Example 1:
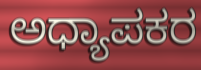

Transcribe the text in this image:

ಅಧ್ಯಾಪಕರ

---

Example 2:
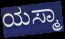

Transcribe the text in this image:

ಯಸ್ಮಾ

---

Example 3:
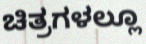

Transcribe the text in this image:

ಚಿತ್ರಗಳಲ್ಲೂ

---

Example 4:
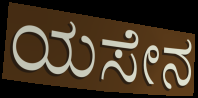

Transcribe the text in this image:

ಯಸೇನ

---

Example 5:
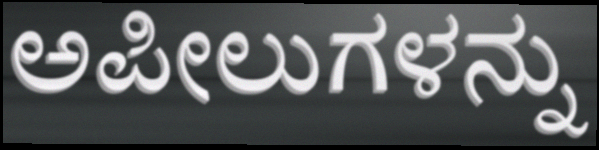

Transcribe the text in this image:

ಅಪೀಲುಗಳನ್ನು